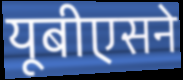
यूबीएसने